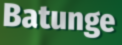
Batunge